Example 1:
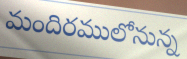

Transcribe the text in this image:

మందిరములోనున్న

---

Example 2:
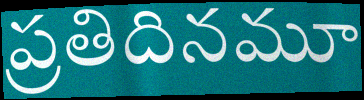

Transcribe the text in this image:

ప్రతిదినమూ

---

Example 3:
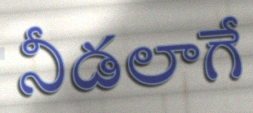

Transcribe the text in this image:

నీడలాగే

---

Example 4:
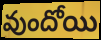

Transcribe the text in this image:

వుందోయి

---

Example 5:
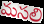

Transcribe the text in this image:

మసలి